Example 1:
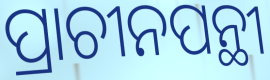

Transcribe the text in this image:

ପ୍ରାଚୀନପନ୍ଥୀ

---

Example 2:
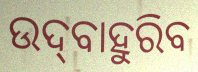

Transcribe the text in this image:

ଉଦ୍‌ବାହୁରିବ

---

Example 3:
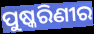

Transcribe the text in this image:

ପୁଷ୍କରିଣୀର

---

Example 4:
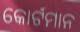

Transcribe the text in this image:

କୋର୍ଟମାନ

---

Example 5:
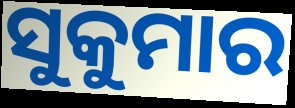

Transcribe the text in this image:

ସୁକୁମାର